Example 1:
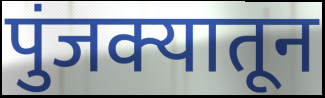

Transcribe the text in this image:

पुंजक्यातून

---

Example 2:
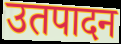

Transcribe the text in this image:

उतपादन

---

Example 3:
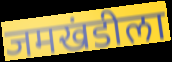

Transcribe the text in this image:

जमखंडीला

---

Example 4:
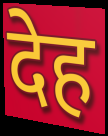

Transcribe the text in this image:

देह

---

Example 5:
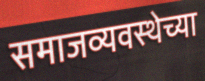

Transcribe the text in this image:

समाजव्यवस्थेच्या